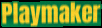
Playmaker